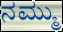
ನಮ್ಮು